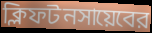
ক্লিফটনসায়েবের